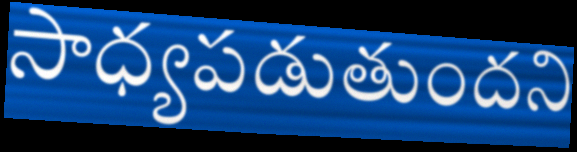
సాధ్యపడుతుందని